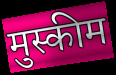
मुस्कीम